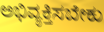
ಅಭಿವ್ಯಕ್ತಿಸಬೇಕು